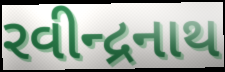
રવીન્દ્રનાથ